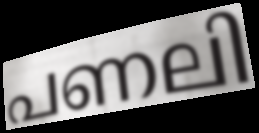
പണലി